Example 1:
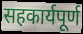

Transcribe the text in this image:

सहकार्यपूर्ण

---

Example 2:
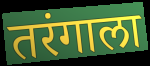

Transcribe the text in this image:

तरंगाला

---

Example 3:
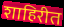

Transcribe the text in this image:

शाहिरीत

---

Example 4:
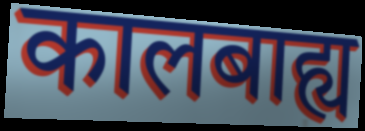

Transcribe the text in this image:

कालबाह्य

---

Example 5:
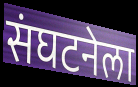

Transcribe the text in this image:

संघटनेला